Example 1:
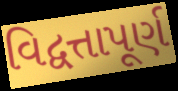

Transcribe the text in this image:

વિદ્વત્તાપૂર્ણ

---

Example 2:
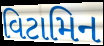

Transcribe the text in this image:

વિટામિન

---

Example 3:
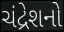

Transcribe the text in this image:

ચંદ્રેશનો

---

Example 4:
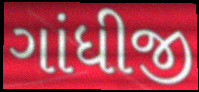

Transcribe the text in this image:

ગાંધીજી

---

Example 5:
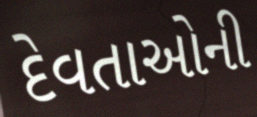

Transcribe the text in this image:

દેવતાઓની